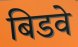
बिडवे